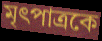
মৃৎপাত্রকে